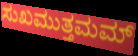
ಸುಖಮುತ್ತಮಮ್